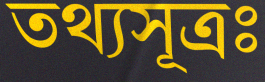
তথ্যসূত্রঃ